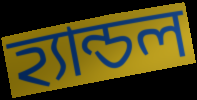
হ্যান্ডল